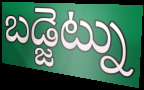
బడ్జెట్ను